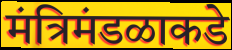
मंत्रिमंडळाकडे